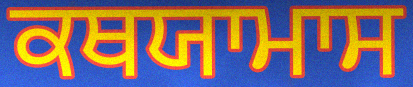
ਕਥਯਾਮਾਸ